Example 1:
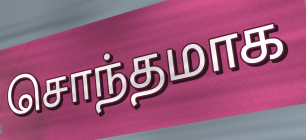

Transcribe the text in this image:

சொந்தமாக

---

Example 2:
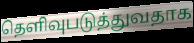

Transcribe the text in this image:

தெளிவுபடுத்துவதாக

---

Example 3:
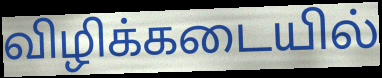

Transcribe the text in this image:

விழிக்கடையில்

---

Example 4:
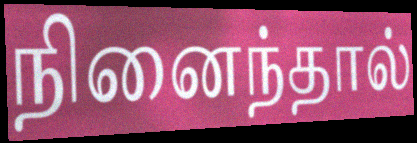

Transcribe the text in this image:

நினைந்தால்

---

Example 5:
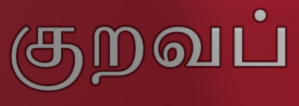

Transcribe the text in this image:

குறவப்